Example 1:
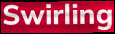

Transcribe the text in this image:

Swirling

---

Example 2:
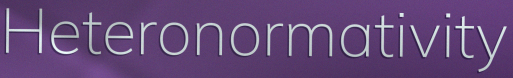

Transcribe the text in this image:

Heteronormativity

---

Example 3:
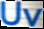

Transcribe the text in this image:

Uv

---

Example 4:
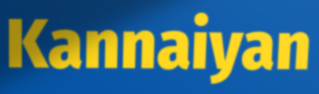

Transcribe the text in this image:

Kannaiyan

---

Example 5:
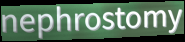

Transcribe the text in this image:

nephrostomy